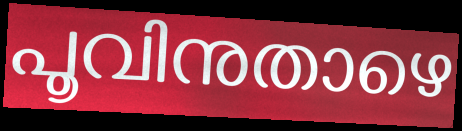
പൂവിനുതാഴെ